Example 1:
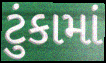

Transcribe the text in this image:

ટુંકામાં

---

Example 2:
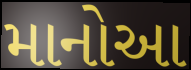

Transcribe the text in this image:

માનોઆ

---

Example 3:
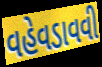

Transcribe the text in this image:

વહેવડાવવી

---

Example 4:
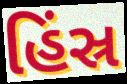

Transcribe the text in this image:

હિંસ્ર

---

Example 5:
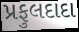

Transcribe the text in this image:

પ્રફુલદાદા